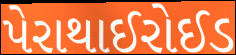
પેરાથાઈરોઈડ